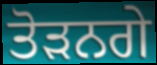
ਤੋੜਨਗੇ